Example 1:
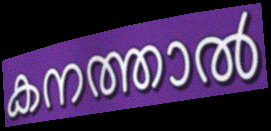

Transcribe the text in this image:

കനത്താൽ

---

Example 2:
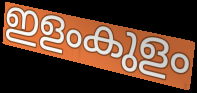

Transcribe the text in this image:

ഇളംകുളം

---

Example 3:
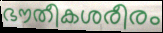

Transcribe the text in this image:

ഭൗതീകശരീരം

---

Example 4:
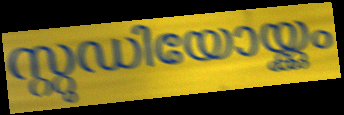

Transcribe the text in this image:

സ്റ്റുഡിയോയ്ക്കും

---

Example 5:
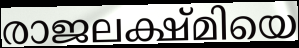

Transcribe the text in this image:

രാജലക്ഷ്മിയെ